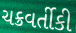
ચક્રવર્તીકી